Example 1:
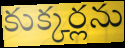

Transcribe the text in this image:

కుక్కర్లను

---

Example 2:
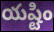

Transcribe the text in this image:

యష్టిం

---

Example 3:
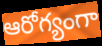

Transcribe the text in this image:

ఆరోగ్యంగా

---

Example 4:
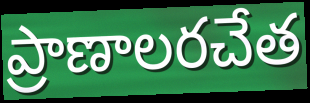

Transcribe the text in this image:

ప్రాణాలరచేత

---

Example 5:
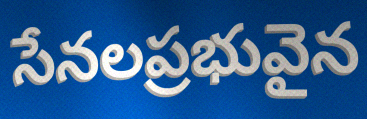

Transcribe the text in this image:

సేనలప్రభువైన